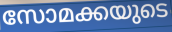
സോമക്കയുടെ